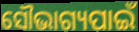
ସୌଭାଗ୍ୟପାଇଁ